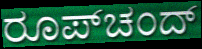
ರೂಪ್‌ಚಂದ್